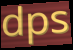
dps